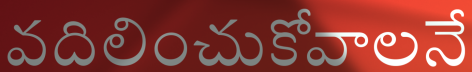
వదిలించుకోవాలనే